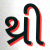
થ્રી